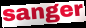
sanger